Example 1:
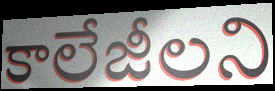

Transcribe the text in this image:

కాలేజీలని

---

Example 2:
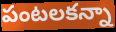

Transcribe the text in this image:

పంటలకన్నా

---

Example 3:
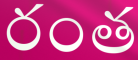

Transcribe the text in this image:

రంత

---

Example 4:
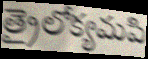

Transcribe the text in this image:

త్రైలోక్యమపి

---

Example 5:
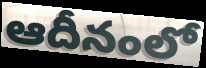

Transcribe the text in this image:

ఆదీనంలో